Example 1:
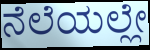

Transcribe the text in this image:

ನೆಲೆಯಲ್ಲೇ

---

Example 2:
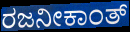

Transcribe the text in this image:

ರಜನೀಕಾಂತ್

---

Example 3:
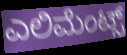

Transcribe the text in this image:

ಎಲಿಮೆಂಟ್ಸ್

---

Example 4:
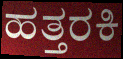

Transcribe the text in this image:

ಹತ್ತರಕಿ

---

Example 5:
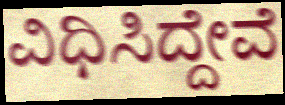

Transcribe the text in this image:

ವಿಧಿಸಿದ್ದೇವೆ